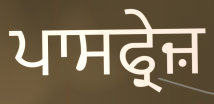
ਪਾਸਫ੍ਰੇਜ਼